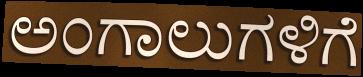
ಅಂಗಾಲುಗಳಿಗೆ